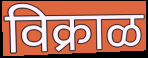
विक्राळ